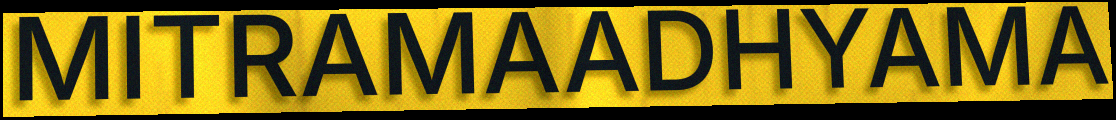
MITRAMAADHYAMA